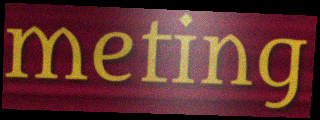
meting